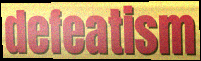
defeatism